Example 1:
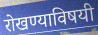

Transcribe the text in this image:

रोखण्याविषयी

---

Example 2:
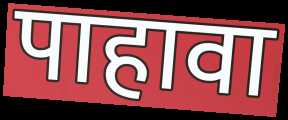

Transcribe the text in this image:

पाहावा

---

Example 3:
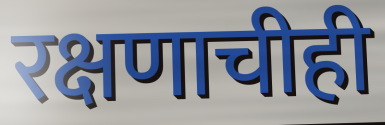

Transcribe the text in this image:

रक्षणाचीही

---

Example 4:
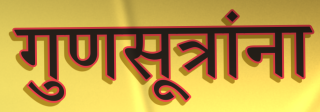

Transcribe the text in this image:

गुणसूत्रांना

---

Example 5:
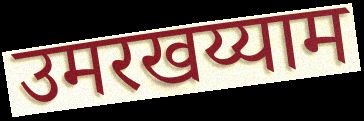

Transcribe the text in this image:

उमरखय्याम